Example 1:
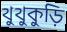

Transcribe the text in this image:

থুথুকুড়ি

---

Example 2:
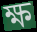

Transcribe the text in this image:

ক্ষ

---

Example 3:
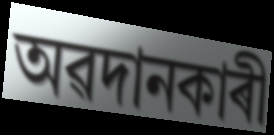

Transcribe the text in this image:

অৱদানকাৰী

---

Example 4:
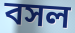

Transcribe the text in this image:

বসল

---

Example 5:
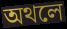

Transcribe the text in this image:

অথলে